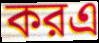
করএ